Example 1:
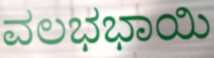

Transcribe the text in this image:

ವಲಭಭಾಯಿ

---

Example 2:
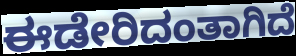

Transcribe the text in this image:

ಈಡೇರಿದಂತಾಗಿದೆ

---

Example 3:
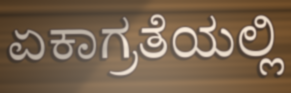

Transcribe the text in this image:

ಏಕಾಗ್ರತೆಯಲ್ಲಿ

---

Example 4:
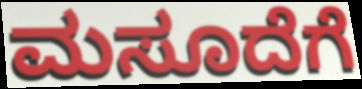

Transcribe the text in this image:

ಮಸೂದೆಗೆ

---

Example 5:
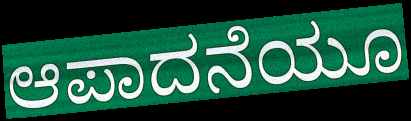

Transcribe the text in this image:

ಆಪಾದನೆಯೂ